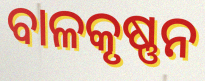
ବାଳକୃଷ୍ଣନ